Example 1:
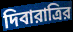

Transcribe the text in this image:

দিবারাত্রির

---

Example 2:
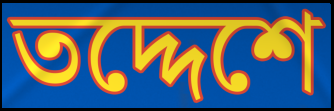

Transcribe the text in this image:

তদ্দেশে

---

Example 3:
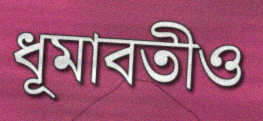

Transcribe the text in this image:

ধূমাবতীও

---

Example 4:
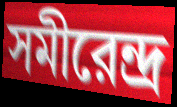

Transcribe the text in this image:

সমীরেন্দ্র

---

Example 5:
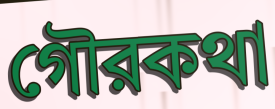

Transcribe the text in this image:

গৌরকথা